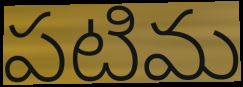
పటిమ